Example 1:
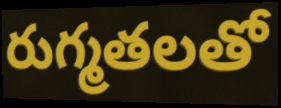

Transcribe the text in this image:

రుగ్మతలతో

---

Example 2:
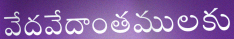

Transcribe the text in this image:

వేదవేదాంతములకు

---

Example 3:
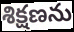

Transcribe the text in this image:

శిక్షణను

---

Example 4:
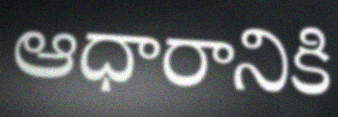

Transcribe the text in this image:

ఆధారానికి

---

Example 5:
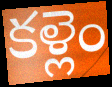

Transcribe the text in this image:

కళ్లెం